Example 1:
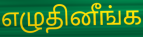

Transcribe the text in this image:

எழுதினீங்க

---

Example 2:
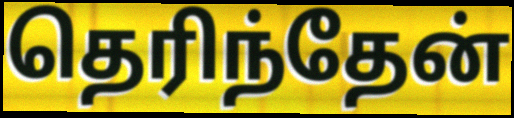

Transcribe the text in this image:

தெரிந்தேன்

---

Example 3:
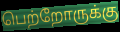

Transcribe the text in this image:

பெற்றோருக்கு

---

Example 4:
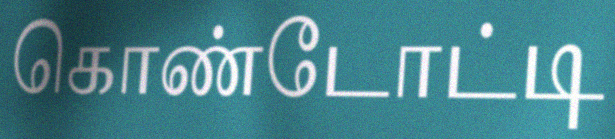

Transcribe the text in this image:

கொண்டோட்டி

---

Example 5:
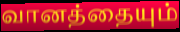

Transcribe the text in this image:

வானத்தையும்